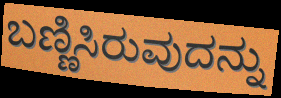
ಬಣ್ಣಿಸಿರುವುದನ್ನು